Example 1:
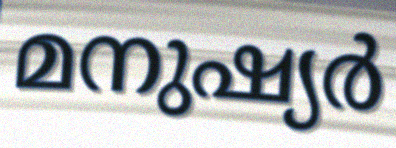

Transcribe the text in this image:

മനുഷ്യർ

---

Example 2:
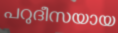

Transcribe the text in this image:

പറുദീസയായ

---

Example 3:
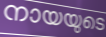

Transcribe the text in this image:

നായയുടെ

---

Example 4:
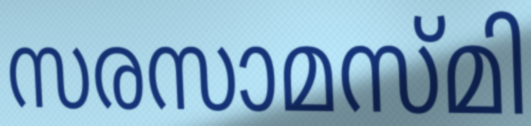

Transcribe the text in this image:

സരസാമസ്മി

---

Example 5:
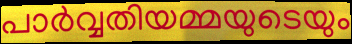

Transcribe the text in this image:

പാർവ്വതിയമ്മയുടെയും